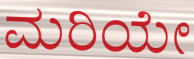
ಮರಿಯೇ